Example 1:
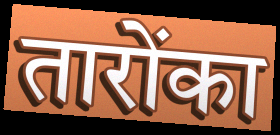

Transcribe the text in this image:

तारोंका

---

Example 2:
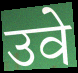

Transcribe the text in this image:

उवे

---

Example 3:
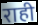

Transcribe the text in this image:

राही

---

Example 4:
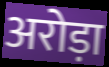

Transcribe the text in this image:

अरोड़ा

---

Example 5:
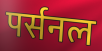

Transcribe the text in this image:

पर्सनल